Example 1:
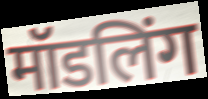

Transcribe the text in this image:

मॉडलिंग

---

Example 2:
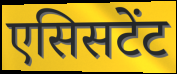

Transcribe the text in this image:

एसिसटेंट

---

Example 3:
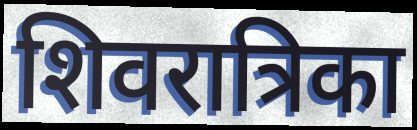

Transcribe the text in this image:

शिवरात्रिका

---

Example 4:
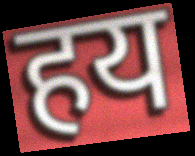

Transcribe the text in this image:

हय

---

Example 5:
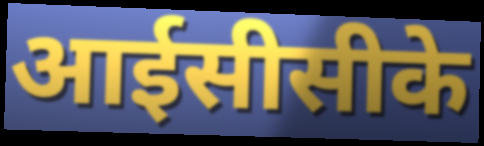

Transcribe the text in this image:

आईसीसीके